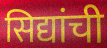
सिद्यांची